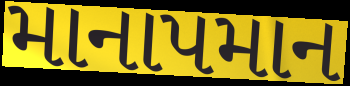
માનાપમાન